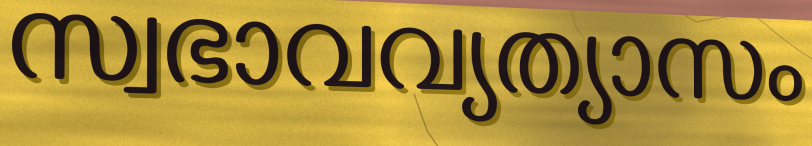
സ്വഭാവവ്യത്യാസം